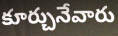
కూర్చునేవారు